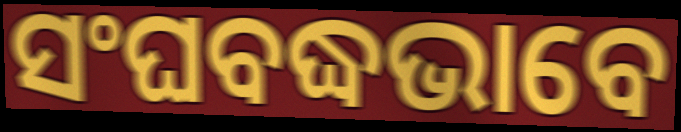
ସଂଘବଦ୍ଧଭାବେ